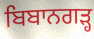
ਬਿਬਾਨਗੜ੍ਹ